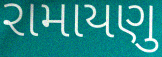
રામાયણુ